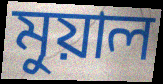
মুয়াল